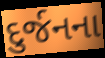
દુર્જનના